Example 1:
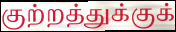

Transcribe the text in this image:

குற்றத்துக்குக்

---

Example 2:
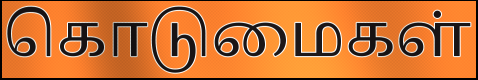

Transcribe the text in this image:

கொடுமைகள்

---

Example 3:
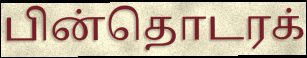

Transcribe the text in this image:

பின்தொடரக்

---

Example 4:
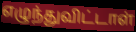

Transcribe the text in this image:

எழுந்துவிட்டாள்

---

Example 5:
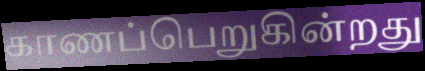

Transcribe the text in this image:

காணப்பெறுகின்றது